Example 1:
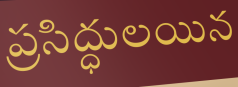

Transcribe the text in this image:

ప్రసిద్ధులయిన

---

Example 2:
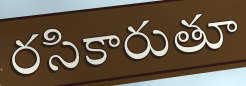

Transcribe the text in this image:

రసికారుతూ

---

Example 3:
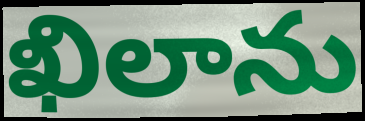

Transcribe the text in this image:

ఖిలాను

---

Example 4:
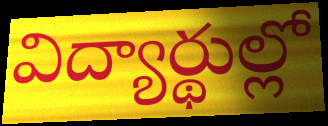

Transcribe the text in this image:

విద్యార్థుల్లో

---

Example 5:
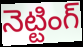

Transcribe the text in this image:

నెట్టింగ్